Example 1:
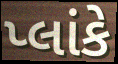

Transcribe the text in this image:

પ્લાંકે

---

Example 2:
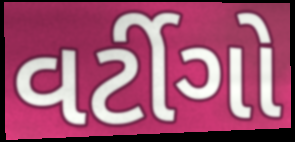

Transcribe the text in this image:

વર્ટીગો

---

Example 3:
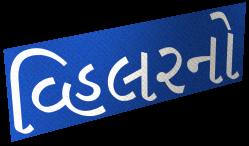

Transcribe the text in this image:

વ્હિલરનો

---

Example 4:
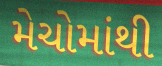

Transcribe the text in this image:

મેચોમાંથી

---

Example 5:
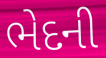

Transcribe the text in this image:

ભેદની